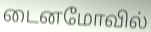
டைனமோவில்